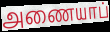
அணையாப்